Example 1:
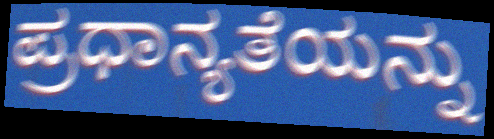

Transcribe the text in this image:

ಪ್ರಧಾನ್ಯತೆಯನ್ನು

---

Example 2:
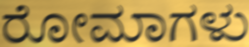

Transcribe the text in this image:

ರೋಮಾಗಳು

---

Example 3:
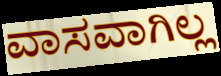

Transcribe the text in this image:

ವಾಸವಾಗಿಲ್ಲ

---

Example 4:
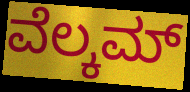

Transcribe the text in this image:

ವೆಲ್ಕಮ್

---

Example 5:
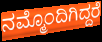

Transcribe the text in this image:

ನಮ್ಮೊಂದಿಗಿದ್ದರೆ